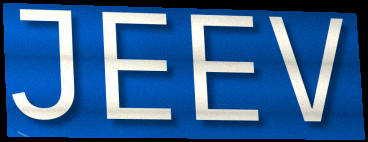
JEEV